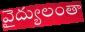
వైద్యులంతా